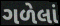
ગળેલાં